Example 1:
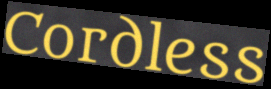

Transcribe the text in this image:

Cordless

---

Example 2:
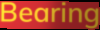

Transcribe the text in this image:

Bearing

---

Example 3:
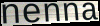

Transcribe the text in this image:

nenna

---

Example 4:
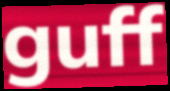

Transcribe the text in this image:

guff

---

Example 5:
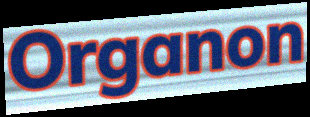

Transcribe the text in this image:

Organon